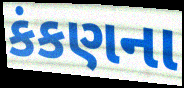
કંકણના